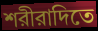
শরীরাদিতে